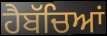
ਹੈਬੱਚਿਆਂ